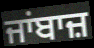
ਜਾਂਬਾਜ਼